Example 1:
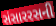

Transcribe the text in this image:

સંસારરસની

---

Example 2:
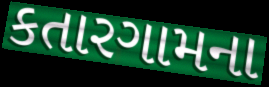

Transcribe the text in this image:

કતારગામના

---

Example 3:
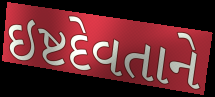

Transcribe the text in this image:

ઇષ્ટદેવતાને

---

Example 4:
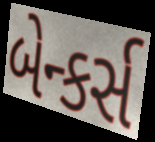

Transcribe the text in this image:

બેન્કર્સ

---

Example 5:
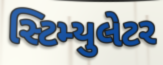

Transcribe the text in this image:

સ્ટિમ્યુલેટર